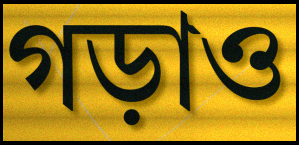
গড়াও